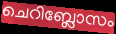
ചെറിബ്ലോസം